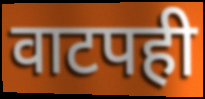
वाटपही